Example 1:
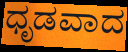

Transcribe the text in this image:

ಧೃಡವಾದ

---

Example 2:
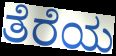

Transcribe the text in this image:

ತೆರೆಯ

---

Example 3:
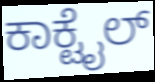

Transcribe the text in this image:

ಕಾಕ್ಟೈಲ್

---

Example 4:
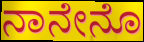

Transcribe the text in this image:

ನಾನೇನೊ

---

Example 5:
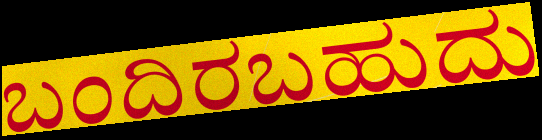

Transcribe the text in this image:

ಬಂದಿರಬಹುದು